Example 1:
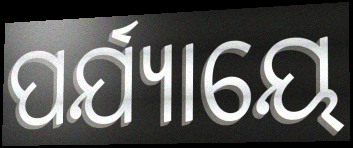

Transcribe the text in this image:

ପର୍ଯ୍ୟାୟେ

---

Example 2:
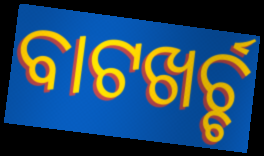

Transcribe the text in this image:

ବାଟଖର୍ଚ୍ଚ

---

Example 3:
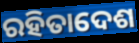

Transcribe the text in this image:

ରହିତାଦେଶ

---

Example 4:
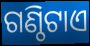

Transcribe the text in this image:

ଗଣ୍ଠିଟାଏ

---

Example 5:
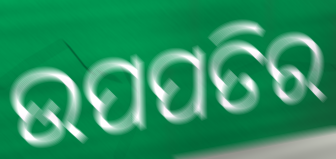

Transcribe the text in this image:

ଉପପତିର